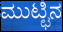
ಮುಟ್ಟಿನ